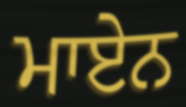
ਮਾਏਨ